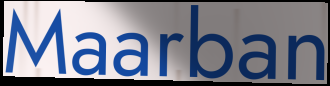
Maarban